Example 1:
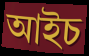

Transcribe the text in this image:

আইচ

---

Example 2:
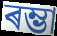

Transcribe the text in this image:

ৰম্ভা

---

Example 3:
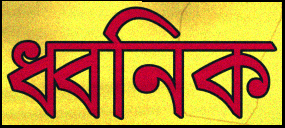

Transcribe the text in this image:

ধ্বনিক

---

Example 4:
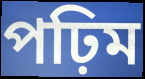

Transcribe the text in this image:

পঢ়িম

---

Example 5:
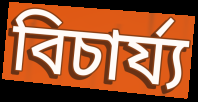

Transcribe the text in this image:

বিচাৰ্য্য